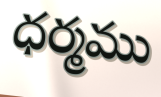
ధర్మము